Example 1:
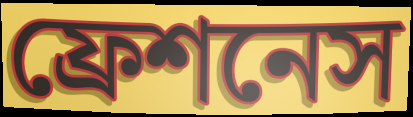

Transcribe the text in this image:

ফ্রেশনেস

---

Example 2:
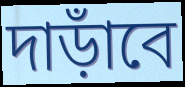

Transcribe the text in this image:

দাড়াঁবে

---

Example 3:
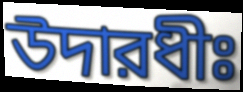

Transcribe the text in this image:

উদারধীঃ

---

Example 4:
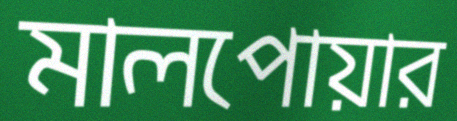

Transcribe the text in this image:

মালপোয়ার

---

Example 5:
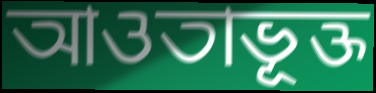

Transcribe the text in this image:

আওতাভূক্ত